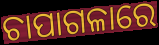
ଚାପାଗଳାରେ